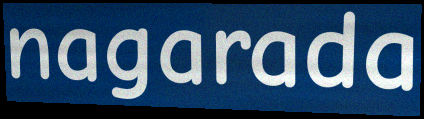
nagarada